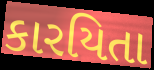
કારયિતા